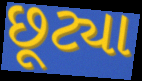
છૂટ્યા